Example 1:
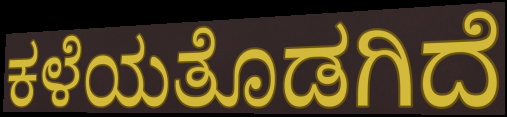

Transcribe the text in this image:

ಕಳೆಯತೊಡಗಿದೆ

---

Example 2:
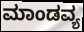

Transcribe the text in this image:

ಮಾಂಡವ್ಯ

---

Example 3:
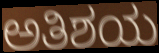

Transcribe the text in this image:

ಅತಿಶಯ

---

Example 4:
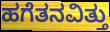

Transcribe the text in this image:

ಹಗೆತನವಿತ್ತು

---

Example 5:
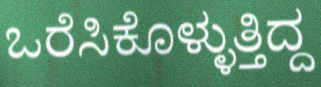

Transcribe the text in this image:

ಒರೆಸಿಕೊಳ್ಳುತ್ತಿದ್ದ